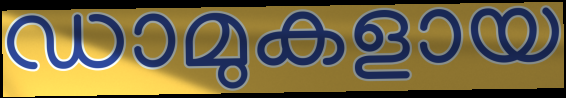
ഡാമുകളായ